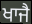
ਖਾਜੈ